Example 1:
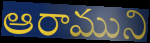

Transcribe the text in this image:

ఆరాముని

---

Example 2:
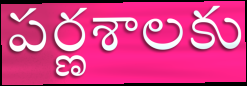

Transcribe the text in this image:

పర్ణశాలకు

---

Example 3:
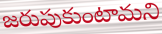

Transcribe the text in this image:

జరుపుకుంటామని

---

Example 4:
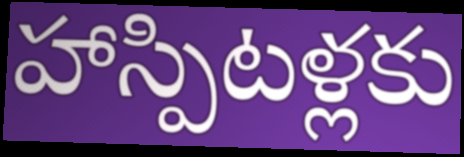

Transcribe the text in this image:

హాస్పిటళ్లకు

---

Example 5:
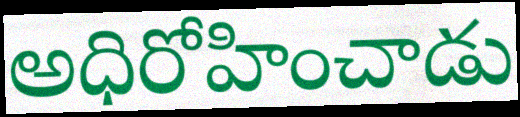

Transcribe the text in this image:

అధిరోహించాడు